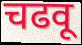
चढवू